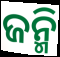
ଜନ୍ମି